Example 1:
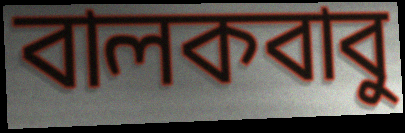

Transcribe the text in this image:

বালকবাবু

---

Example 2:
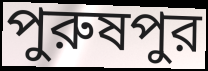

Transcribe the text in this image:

পুরুষপুর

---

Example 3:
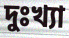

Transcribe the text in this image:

দুঃখ্যা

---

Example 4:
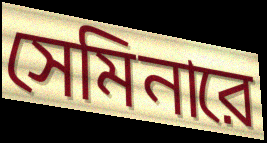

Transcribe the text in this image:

সেমিনারে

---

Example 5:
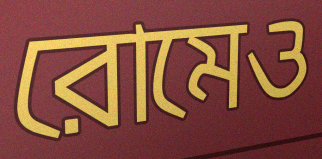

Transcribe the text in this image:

রোমেও